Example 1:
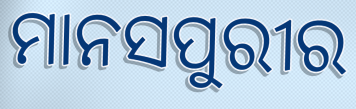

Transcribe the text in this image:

ମାନସପୁରୀର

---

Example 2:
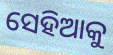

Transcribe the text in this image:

ସେହିଆକୁ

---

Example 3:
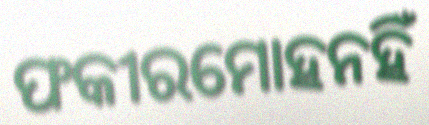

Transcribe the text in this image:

ଫକୀରମୋହନହିଁ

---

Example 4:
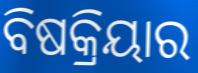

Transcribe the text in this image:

ବିଷକ୍ରିୟାର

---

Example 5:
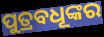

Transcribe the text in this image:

ପୁତ୍ରବଧୂଙ୍କର